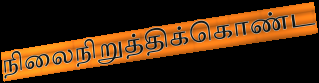
நிலைநிறுத்திக்கொண்ட